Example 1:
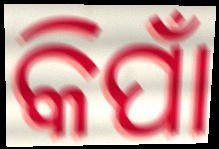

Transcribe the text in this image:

କିପାଁ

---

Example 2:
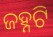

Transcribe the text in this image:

ଜହ୍ନଟି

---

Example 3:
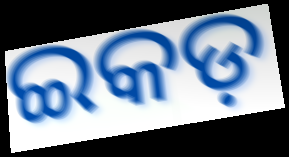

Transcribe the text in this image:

ଇକଡ଼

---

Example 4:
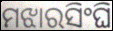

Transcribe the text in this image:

ମଝାରସିଂଘି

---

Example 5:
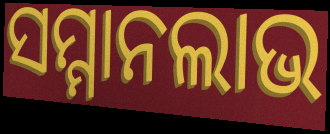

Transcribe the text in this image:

ସମ୍ମାନଲାଭ